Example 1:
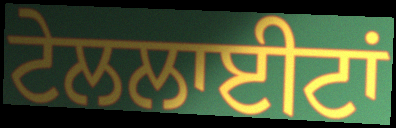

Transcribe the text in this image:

ਟੇਲਲਾਈਟਾਂ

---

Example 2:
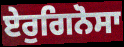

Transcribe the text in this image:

ਏਰੁਗਿਨੋਸਾ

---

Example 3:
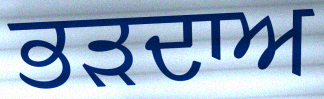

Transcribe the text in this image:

ਭੜਦਾਅ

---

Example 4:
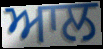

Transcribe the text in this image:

ਆਲ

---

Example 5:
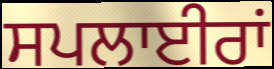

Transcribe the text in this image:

ਸਪਲਾਈਰਾਂ